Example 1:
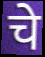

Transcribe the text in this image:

चे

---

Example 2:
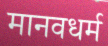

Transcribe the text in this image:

मानवधर्म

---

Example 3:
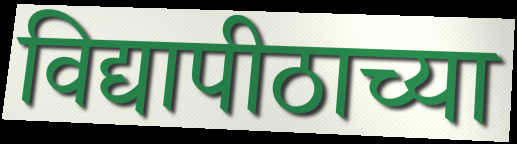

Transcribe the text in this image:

विद्यापीठाच्या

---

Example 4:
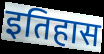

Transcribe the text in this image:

इतिहास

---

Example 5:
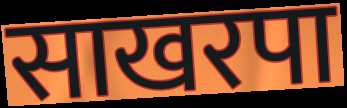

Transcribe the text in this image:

साखरपा